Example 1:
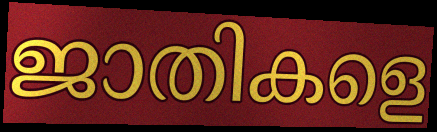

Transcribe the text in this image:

ജാതികളെ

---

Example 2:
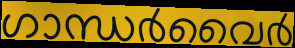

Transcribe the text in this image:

ഗാന്ധർവൈർ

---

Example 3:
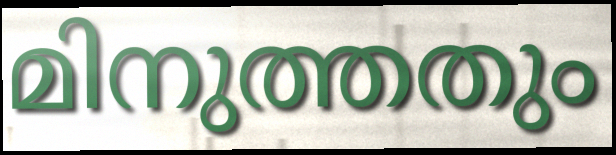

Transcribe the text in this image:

മിനുത്തതും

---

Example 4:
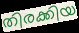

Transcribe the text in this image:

തിരക്കിയ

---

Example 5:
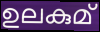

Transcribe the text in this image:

ഉലകുമ്